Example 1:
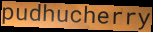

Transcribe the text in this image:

pudhucherry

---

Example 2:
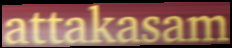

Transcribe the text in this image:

attakasam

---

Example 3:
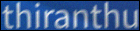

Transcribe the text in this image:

thiranthu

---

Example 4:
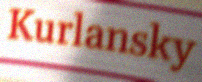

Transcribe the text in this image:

Kurlansky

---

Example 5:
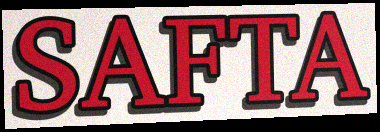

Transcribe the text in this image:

SAFTA